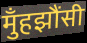
मुँहझौंसी